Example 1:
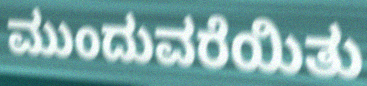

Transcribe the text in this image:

ಮುಂದುವರೆಯಿತು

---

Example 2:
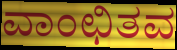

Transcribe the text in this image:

ವಾಂಛಿತವ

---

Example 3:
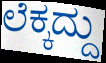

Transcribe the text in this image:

ಲೆಕ್ಕದ್ದು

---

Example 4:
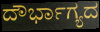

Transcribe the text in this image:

ದೌರ್ಭಾಗ್ಯದ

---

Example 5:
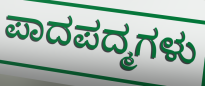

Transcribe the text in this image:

ಪಾದಪದ್ಮಗಳು